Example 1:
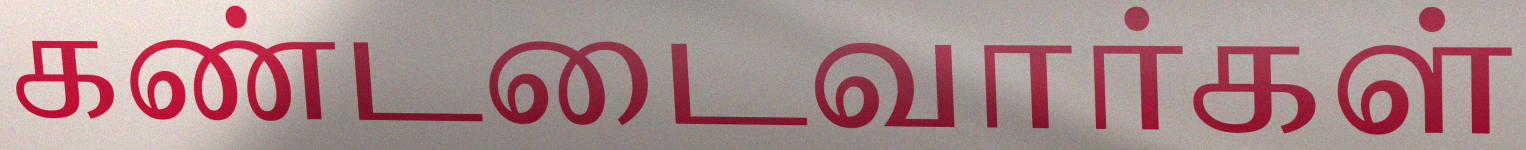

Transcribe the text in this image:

கண்டடைவார்கள்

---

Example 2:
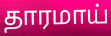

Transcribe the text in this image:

தாரமாய்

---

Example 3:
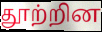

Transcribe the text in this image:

தூற்றின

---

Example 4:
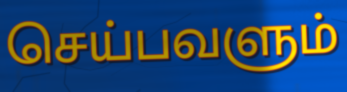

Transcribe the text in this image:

செய்பவளும்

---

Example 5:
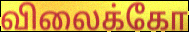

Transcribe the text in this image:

விலைக்கோ